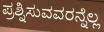
ಪ್ರಶ್ನಿಸುವವರನ್ನೆಲ್ಲ